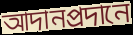
আদানপ্রদানে